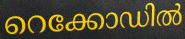
റെക്കോഡിൽ